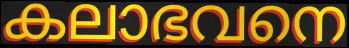
കലാഭവനെ